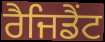
ਰੈਜਿਡੈਂਟ